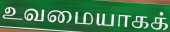
உவமையாகக்